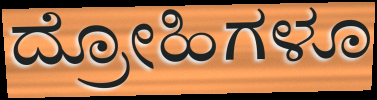
ದ್ರೋಹಿಗಳೂ